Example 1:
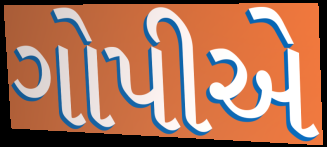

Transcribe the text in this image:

ગોપીએ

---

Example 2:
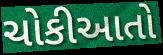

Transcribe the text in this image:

ચોકીઆતો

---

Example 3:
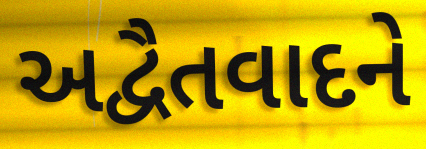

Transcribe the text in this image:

અદ્વૈતવાદને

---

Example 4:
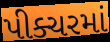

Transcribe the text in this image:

પીક્ચરમાં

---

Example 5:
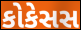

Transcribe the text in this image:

કોકેસસ